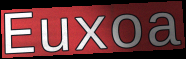
Euxoa